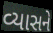
વ્યાસને